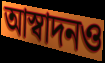
আস্বাদনও